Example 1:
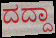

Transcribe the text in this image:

ದದ್ದಾ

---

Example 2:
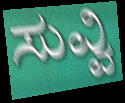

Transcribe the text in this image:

ಸುವ್ವಿ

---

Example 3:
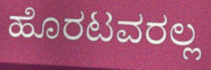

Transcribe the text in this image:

ಹೊರಟವರಲ್ಲ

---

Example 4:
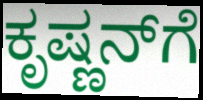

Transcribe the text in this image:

ಕೃಷ್ಣನ್‌ಗೆ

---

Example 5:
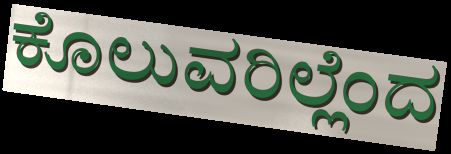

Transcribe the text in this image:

ಕೊಲುವರಿಲ್ಲೆಂದ